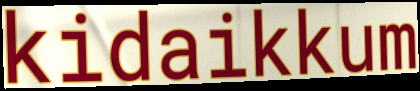
kidaikkum